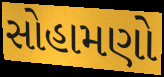
સોહામણો